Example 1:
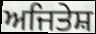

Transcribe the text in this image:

ਅਜਿਤੇਸ਼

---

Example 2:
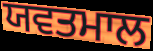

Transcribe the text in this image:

ਯਵਤਮਾਲ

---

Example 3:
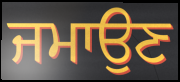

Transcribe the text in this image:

ਜਮਾਉਣ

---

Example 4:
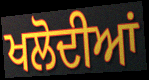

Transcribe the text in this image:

ਖਲੋਦੀਆਂ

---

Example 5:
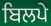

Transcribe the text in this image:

ਬਿਲਪੇ